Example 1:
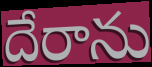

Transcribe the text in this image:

దేరాను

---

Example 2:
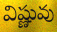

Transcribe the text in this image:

విష్ణువు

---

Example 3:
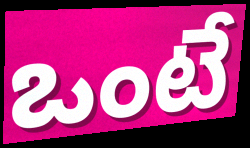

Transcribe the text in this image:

ఒంటే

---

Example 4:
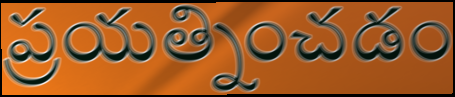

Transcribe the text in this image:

ప్రయత్నించడం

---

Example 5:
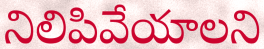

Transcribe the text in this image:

నిలిపివేయాలని